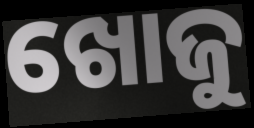
ଖୋଜୁ